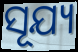
ସୂଯ୍ୟ